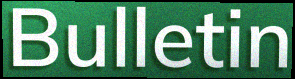
Bulletin